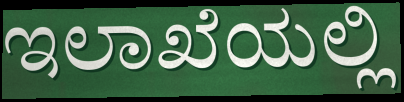
ಇಲಾಖೆಯಲ್ಲಿ